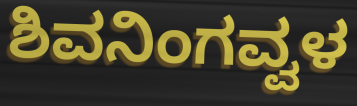
ಶಿವನಿಂಗವ್ವಳ